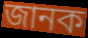
জানক